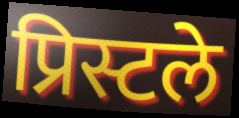
प्रिस्टले